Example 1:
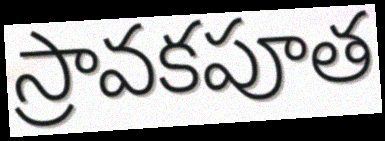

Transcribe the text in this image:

స్రావకపూత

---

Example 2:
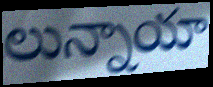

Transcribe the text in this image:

లున్నాయా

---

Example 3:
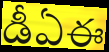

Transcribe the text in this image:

డీఏఈ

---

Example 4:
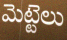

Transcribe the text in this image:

మెట్టెలు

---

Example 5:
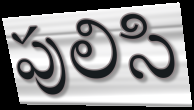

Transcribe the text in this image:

పులిసి